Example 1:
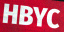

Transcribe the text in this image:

HBYC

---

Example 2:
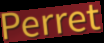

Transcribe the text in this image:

Perret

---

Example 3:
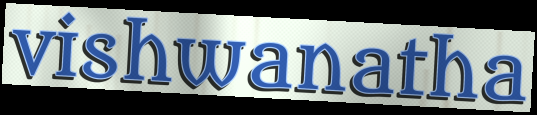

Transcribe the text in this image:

vishwanatha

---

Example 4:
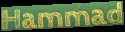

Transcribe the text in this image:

Hammad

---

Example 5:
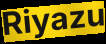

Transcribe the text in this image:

Riyazu